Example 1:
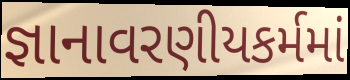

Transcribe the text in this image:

જ્ઞાનાવરણીયકર્મમાં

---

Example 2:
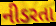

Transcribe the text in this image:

નીડરતા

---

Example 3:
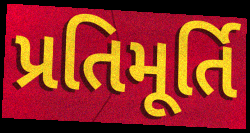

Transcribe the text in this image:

પ્રતિમૂર્તિ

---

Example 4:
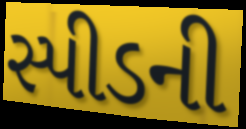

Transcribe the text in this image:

સ્પીડની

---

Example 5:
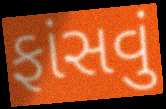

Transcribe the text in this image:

ફાંસવું